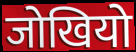
जोखियो